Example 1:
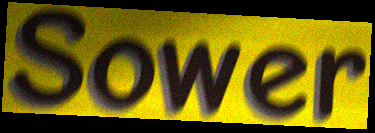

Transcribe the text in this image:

Sower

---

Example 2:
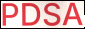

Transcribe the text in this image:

PDSA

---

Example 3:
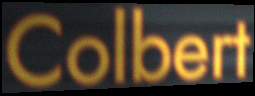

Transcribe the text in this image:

Colbert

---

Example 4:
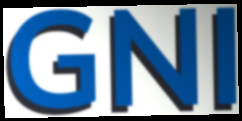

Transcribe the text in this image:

GNI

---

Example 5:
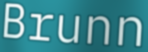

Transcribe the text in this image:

Brunn